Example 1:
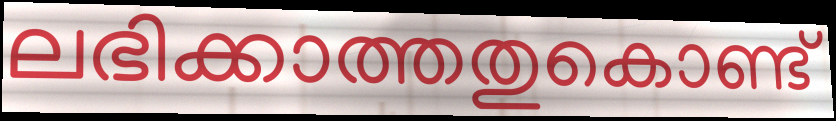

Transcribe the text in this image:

ലഭിക്കാത്തതുകൊണ്ട്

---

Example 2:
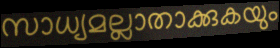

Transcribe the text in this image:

സാധ്യമല്ലാതാക്കുകയും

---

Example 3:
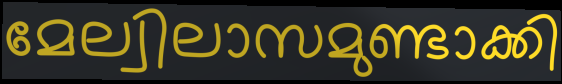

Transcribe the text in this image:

മേല്വിലാസമുണ്ടാക്കി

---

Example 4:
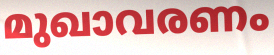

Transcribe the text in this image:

മുഖാവരണം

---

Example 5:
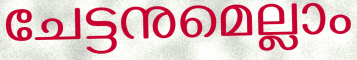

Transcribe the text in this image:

ചേട്ടനുമെല്ലാം